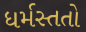
ધર્મસ્તતો